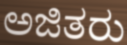
ಅಜಿತರು